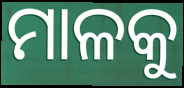
ମାଳକୁ